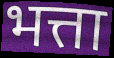
भत्ता